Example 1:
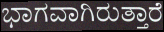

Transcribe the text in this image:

ಭಾಗವಾಗಿರುತ್ತಾರೆ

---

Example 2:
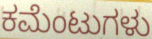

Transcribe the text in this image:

ಕಮೆಂಟುಗಳು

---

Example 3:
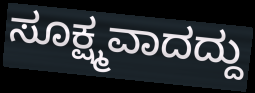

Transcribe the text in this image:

ಸೂಕ್ಷ್ಮವಾದದ್ದು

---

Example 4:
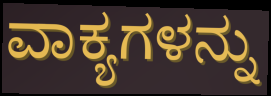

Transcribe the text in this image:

ವಾಕ್ಯಗಳನ್ನು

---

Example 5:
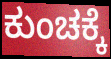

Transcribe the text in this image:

ಕುಂಚಕ್ಕೆ